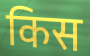
किस